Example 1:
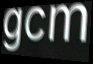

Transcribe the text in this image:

gcm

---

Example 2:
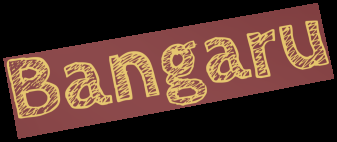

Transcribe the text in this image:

Bangaru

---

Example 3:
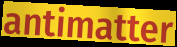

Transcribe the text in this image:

antimatter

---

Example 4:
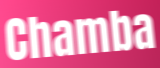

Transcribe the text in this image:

Chamba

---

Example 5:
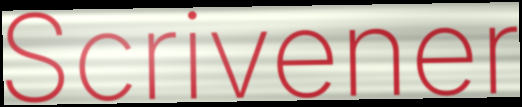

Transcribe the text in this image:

Scrivener